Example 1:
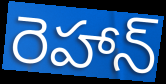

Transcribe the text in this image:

రెహాన్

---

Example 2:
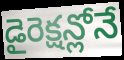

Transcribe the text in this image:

డైరెక్షన్లోనే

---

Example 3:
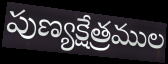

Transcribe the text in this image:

పుణ్యక్షేత్రముల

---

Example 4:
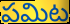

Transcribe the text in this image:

పమిట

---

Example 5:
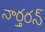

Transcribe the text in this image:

నార్తరన్